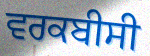
ਵਰਕਬੀਸੀ